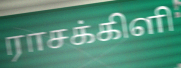
ராசக்கிளி